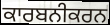
ਕਾਰਬਨੀਕਰਨ